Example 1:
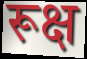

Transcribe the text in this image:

रूक्ष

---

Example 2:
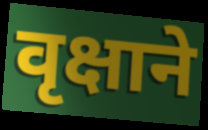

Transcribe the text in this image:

वृक्षाने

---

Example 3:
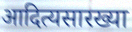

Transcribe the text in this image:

आदित्यसारख्या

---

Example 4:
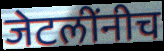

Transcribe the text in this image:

जेटलींनीच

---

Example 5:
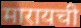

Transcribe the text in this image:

मारायची